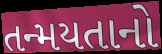
તન્મયતાનો